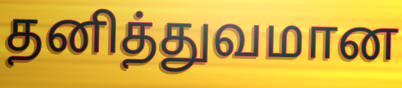
தனித்துவமான